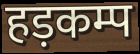
हड़कम्‍प